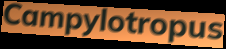
Campylotropus